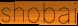
shobai